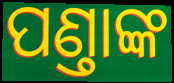
ପଣ୍ତାଙ୍କ